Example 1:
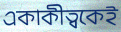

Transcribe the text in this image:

একাকীত্বকেই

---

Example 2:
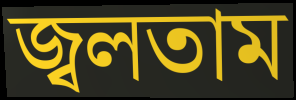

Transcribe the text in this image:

জ্বলতাম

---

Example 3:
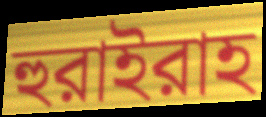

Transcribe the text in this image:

হুরাইরাহ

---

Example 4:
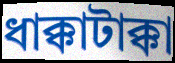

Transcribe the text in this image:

ধাক্কাটাক্কা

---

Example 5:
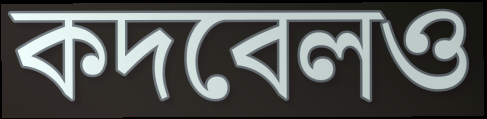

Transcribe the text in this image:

কদবেলও